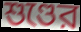
শুণ্ডের